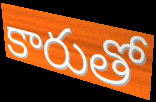
కారుతో